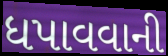
ધપાવવાની